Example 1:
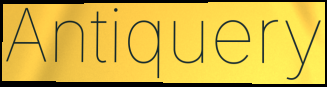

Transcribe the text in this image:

Antiquery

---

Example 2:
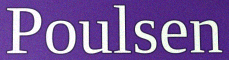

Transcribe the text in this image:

Poulsen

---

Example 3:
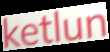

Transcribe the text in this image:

ketlun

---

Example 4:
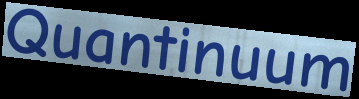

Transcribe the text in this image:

Quantinuum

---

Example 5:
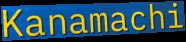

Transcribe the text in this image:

Kanamachi